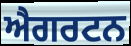
ਐਗਰਟਨ